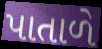
પાતાળે